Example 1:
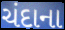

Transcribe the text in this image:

ચંદાના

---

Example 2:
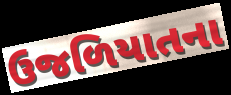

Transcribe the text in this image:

ઉજળિયાતના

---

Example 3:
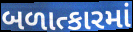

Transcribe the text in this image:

બળાત્કારમાં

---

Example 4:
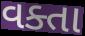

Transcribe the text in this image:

વક્તા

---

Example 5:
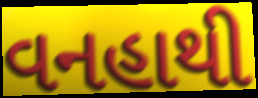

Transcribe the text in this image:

વનહાથી